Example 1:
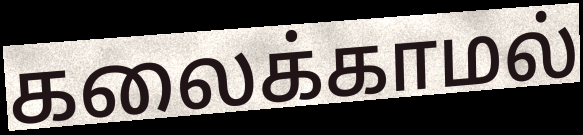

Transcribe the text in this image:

கலைக்காமல்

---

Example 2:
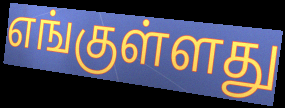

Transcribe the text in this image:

எங்குள்ளது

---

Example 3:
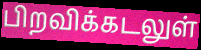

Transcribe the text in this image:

பிறவிக்கடலுள்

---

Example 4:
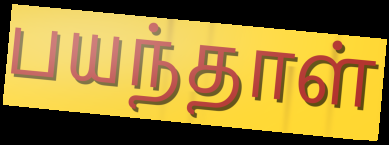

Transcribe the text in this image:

பயந்தாள்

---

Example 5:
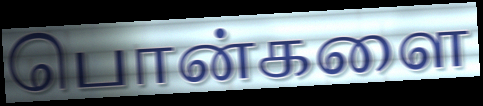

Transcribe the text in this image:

பொன்களை